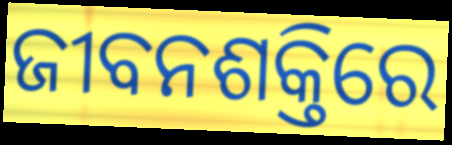
ଜୀବନଶକ୍ତିରେ